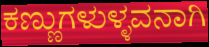
ಕಣ್ಣುಗಳುಳ್ಳವನಾಗಿ